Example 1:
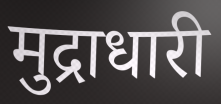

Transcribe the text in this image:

मुद्राधारी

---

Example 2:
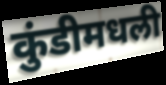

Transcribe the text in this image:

कुंडीमधली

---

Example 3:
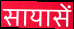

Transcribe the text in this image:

सायासें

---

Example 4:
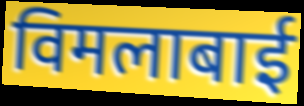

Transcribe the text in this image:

विमलाबाई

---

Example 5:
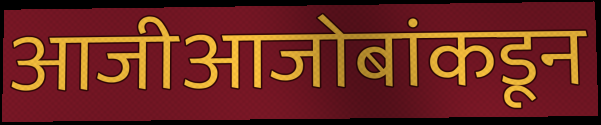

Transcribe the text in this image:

आजीआजोबांकडून